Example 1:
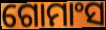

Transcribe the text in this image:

ଗୋମାଂସ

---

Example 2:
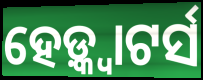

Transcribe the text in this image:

ହେଡ଼୍କ୍ୱାଟର୍ସ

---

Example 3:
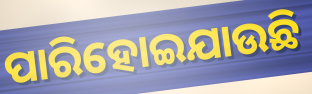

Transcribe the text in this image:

ପାରିହୋଇଯାଉଛି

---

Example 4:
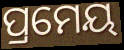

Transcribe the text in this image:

ପ୍ରମେୟ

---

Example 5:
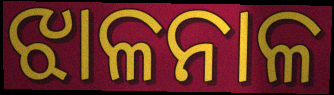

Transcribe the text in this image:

ଝାଳନାଳ